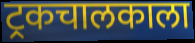
ट्रकचालकाला